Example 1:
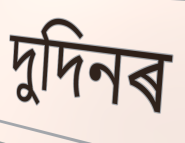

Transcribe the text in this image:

দুদিনৰ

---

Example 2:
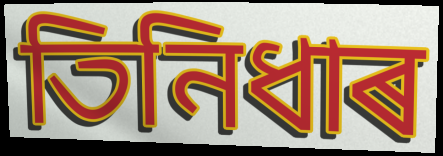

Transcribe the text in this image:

তিনিধাৰ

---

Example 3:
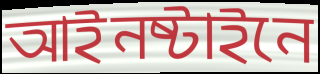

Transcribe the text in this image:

আইনষ্টাইনে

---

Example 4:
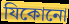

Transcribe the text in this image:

যিকোনো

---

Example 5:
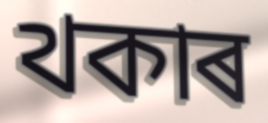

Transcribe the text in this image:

থকাৰ